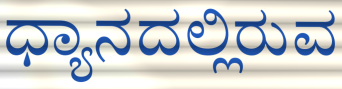
ಧ್ಯಾನದಲ್ಲಿರುವ